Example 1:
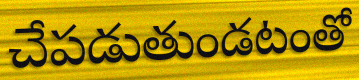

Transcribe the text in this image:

చేపడుతుండటంతో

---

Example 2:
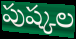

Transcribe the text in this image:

పుష్కల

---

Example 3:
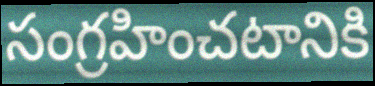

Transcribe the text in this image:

సంగ్రహించటానికి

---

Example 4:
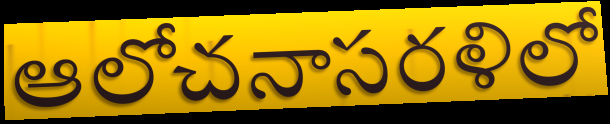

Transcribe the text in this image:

ఆలోచనాసరళిలో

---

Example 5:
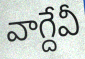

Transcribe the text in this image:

వాగ్దేవీ